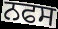
ਨਫਸ